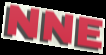
NNE